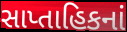
સાપ્તાહિકનાં